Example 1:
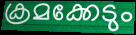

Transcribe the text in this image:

ക്രമക്കേടും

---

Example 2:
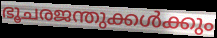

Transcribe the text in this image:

ഭൂചരജന്തുക്കൾക്കും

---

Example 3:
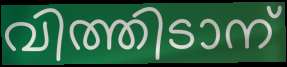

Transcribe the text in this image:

വിത്തിടാന്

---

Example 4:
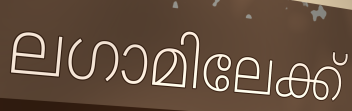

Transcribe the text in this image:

ലഗാമിലേക്ക്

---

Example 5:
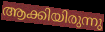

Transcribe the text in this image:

ആക്കിയിരുന്നു